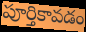
పూర్తికావడం